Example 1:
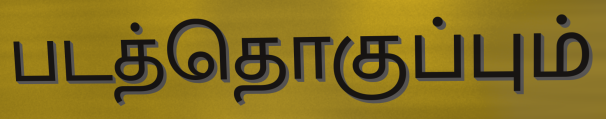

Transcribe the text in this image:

படத்தொகுப்பும்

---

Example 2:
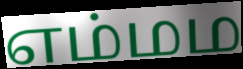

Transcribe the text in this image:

எம்மம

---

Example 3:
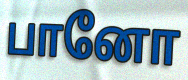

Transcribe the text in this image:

பானோ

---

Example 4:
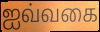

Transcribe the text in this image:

ஐவ்வகை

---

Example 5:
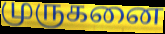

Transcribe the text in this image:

முருகனை